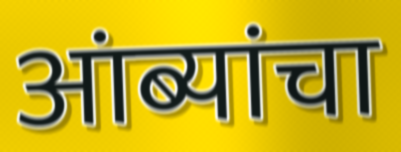
आंब्यांचा